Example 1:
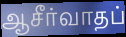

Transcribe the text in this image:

ஆசீர்வாதப்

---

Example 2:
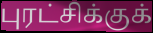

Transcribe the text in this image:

புரட்சிக்குக்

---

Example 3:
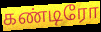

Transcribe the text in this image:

கண்டிரோ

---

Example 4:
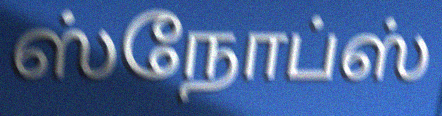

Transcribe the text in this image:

ஸ்நோப்ஸ்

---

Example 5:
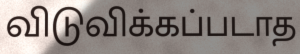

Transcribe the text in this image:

விடுவிக்கப்படாத